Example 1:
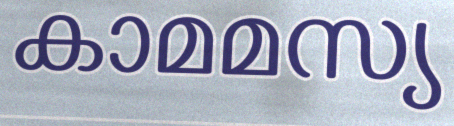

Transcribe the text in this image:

കാമമസ്യ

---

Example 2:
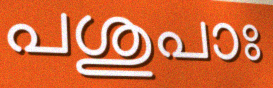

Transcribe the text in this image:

പശുപാഃ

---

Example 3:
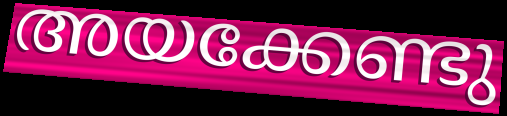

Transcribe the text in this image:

അയക്കേണ്ടു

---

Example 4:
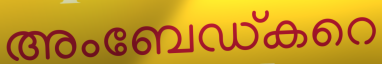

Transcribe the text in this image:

അംബേഡ്കറെ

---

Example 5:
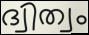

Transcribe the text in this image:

ദ്വിത്വം